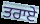
ਤਰਾਏ